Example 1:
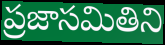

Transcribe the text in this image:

ప్రజాసమితిని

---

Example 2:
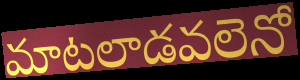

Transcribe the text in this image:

మాటలాడవలెనో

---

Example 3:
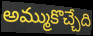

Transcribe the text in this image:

అమ్ముకొచ్చేది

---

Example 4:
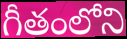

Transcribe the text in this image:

గీతంలోని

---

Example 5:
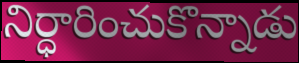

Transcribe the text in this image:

నిర్ధారించుకొన్నాడు